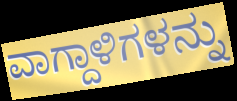
ವಾಗ್ದಾಳಿಗಳನ್ನು